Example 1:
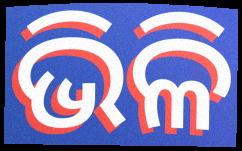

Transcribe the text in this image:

ଭିଳି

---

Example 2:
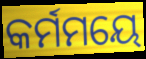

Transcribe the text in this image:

କର୍ମମୟେ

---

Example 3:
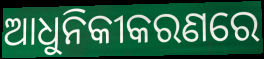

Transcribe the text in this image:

ଆଧୁନିକୀକରଣରେ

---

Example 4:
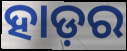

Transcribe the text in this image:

ହାଡ଼ର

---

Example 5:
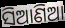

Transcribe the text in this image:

ସିଆଣିଆ